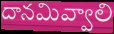
దానమివ్వాలి